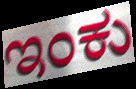
ಇಂಕು